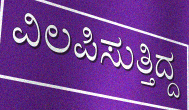
ವಿಲಪಿಸುತ್ತಿದ್ದ